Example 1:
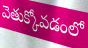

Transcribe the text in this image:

వెతుక్కోవడంలో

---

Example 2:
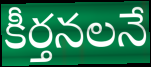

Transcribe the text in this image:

కీర్తనలనే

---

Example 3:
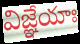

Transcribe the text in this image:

విజ్ఞేయాః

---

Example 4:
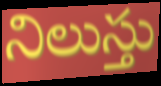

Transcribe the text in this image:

నిలుస్తు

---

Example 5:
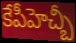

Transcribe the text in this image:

కేపీహెచ్బీ